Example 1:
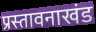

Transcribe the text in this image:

प्रस्तावनाखंड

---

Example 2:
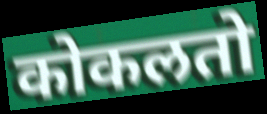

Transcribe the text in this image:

कोकलतो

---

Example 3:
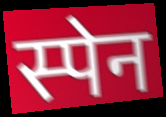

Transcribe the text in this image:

स्पेन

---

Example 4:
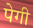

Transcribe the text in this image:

पेगी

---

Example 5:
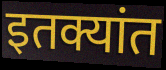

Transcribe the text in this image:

इतक्यांत